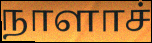
நாளாச்